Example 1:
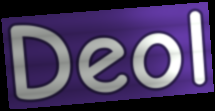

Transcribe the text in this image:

Deol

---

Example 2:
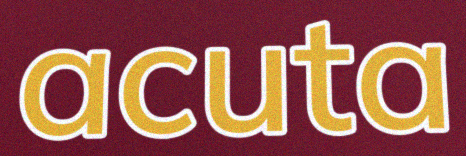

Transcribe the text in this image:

acuta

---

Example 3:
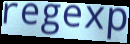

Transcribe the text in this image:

regexp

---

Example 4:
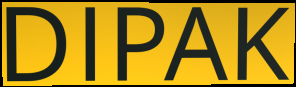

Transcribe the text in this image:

DIPAK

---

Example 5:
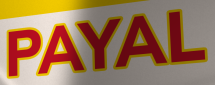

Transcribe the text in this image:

PAYAL